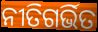
ନୀତିଗର୍ଭିତ